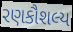
રણકૌશલ્ય